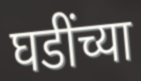
घडींच्या